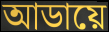
আডায়ে